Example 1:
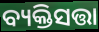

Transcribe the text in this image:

ବ୍ୟକ୍ତିସତ୍ତା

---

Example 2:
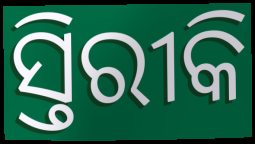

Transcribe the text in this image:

ସ୍ତିରୀକି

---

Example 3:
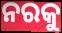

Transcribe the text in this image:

ନରକୁ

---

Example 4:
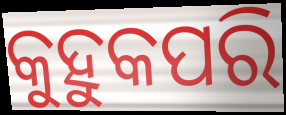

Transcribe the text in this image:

କୁହୁକପରି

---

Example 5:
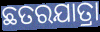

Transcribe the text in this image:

ଛତରଯାତ୍ରା